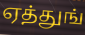
ஏத்துங்